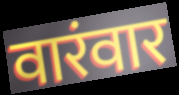
वारंवार